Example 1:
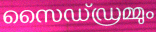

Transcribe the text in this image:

സൈഡ്ഡ്രമ്മും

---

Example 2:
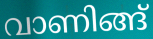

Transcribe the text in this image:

വാണിങ്ങ്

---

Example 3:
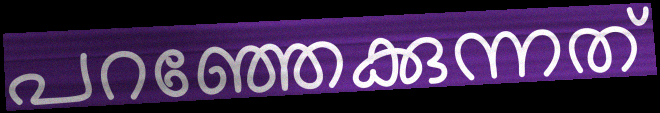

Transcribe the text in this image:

പറഞ്ഞേക്കുന്നത്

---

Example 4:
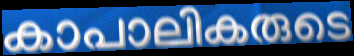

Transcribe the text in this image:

കാപാലികരുടെ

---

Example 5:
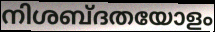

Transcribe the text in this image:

നിശബ്ദതയോളം